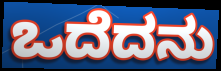
ಒದೆದನು